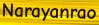
Narayanrao